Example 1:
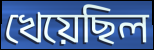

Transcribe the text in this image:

খেয়েছিল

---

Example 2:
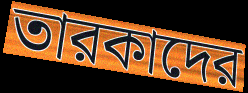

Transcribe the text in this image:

তারকাদের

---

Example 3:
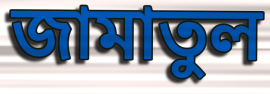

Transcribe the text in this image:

জামাতুল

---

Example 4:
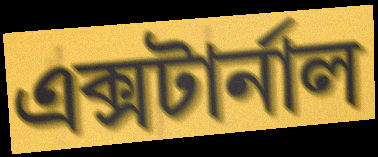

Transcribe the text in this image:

এক্সটার্নাল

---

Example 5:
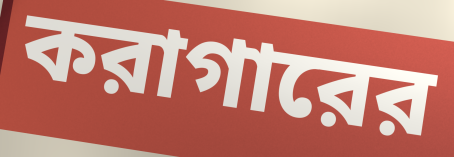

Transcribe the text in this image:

করাগারের